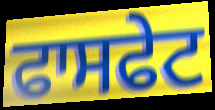
ਫਾਸਫੇਟ